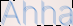
Ahha